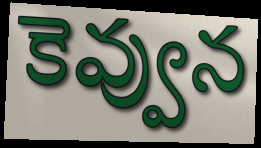
కెవ్వున